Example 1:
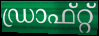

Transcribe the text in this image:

ഡ്രാഫ്റ്റ്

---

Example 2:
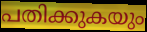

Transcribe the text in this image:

പതിക്കുകയും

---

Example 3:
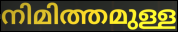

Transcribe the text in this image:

നിമിത്തമുള്ള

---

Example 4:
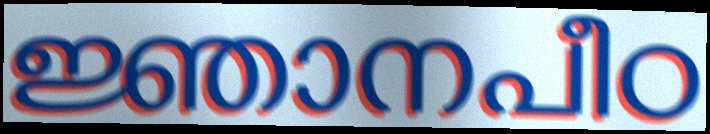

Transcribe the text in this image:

ജ്ഞാനപീഠ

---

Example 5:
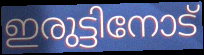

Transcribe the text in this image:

ഇരുട്ടിനോട്